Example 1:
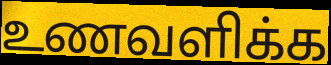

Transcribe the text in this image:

உணவளிக்க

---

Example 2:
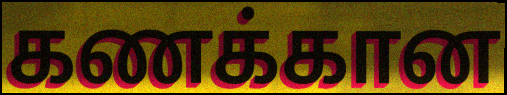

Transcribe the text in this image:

கணக்கான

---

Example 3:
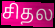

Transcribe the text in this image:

சிதல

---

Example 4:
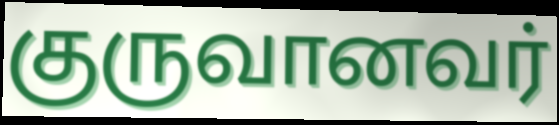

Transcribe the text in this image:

குருவானவர்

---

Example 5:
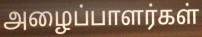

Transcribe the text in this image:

அழைப்பாளர்கள்